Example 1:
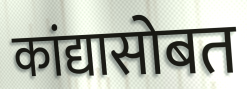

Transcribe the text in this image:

कांद्यासोबत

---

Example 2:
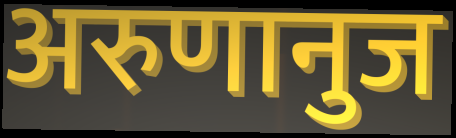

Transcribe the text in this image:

अरुणानुज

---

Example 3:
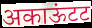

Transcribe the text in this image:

अकाऊंटट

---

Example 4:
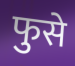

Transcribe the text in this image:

फुसे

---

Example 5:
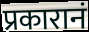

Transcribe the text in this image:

प्रकारानं